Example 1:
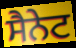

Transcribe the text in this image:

ਸੈਨੇਟ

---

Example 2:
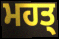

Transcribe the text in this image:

ਮਹਤ੍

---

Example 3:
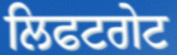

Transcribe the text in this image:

ਲਿਫਟਗੇਟ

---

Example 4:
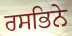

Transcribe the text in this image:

ਰਸਭਿਨੇ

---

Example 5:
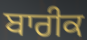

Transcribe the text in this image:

ਬਾਰੀਕ